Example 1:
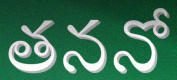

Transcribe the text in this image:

తననో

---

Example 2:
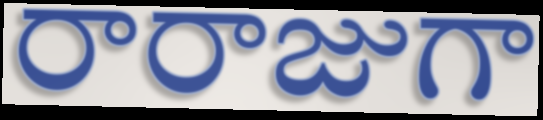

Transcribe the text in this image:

రారాజుగా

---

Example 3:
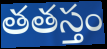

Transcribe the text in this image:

తతస్తం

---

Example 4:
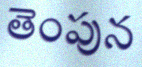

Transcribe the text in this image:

తెంపున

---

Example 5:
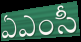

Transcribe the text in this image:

ఏఎంసీ